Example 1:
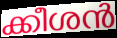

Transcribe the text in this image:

ക്കീശൻ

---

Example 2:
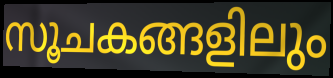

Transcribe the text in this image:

സൂചകങ്ങളിലും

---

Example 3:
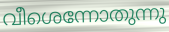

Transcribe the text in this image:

വീശെന്നോതുന്നു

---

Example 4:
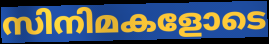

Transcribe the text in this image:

സിനിമകളോടെ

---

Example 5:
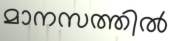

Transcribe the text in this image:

മാനസത്തിൽ